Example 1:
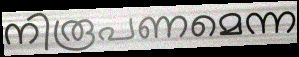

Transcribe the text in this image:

നിരൂപണമെന്ന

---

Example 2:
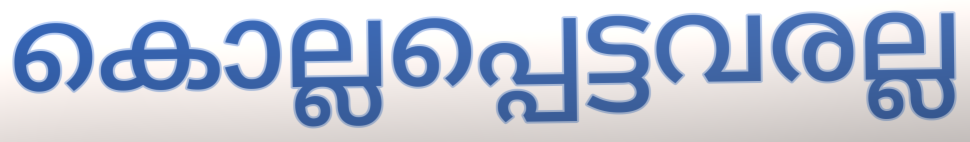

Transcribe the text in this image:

കൊല്ലപ്പെട്ടവരല്ല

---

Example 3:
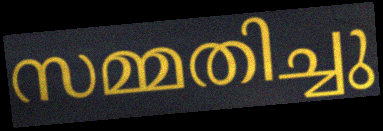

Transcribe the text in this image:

സമ്മതിച്ചു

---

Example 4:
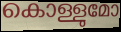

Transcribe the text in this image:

കൊള്ളുമോ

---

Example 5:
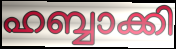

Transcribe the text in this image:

ഹബ്ബാക്കി